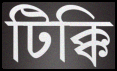
টিক্কি